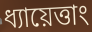
ধ্যায়েত্তাং